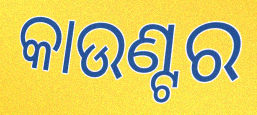
କାଉଣ୍ଟର